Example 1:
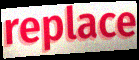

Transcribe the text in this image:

replace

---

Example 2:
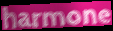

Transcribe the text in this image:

harmone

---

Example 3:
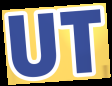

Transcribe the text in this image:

UT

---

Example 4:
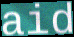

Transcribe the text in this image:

aid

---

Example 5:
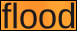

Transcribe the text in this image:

flood